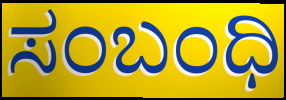
ಸಂಬಂಧಿ